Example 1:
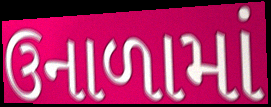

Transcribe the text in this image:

ઉનાળામાં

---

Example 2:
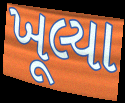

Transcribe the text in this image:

ખૂલ્યા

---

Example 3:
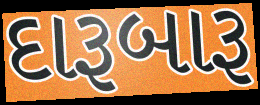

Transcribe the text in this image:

દારૂબારૂ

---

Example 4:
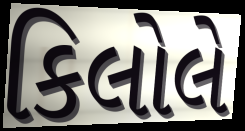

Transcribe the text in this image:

કિલોલે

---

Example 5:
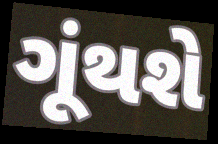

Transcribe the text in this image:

ગૂંથશે